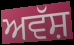
ਅਵੱਸ਼